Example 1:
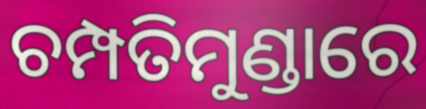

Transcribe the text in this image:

ଚମ୍ପତିମୁଣ୍ଡାରେ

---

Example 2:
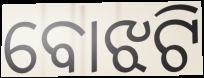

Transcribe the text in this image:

ବୋଝଟି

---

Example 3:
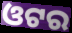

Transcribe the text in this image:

ଓଟର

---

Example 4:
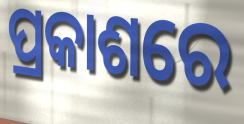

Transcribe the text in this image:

ପ୍ରକାଶରେ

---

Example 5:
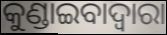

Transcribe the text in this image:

କୁଣ୍ଡାଇବାଦ୍ୱାରା